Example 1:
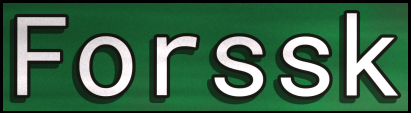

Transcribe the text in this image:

Forssk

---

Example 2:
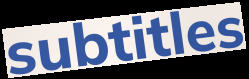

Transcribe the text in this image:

subtitles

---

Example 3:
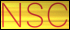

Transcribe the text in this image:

NSC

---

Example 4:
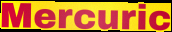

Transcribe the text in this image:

Mercuric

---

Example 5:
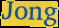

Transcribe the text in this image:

Jong